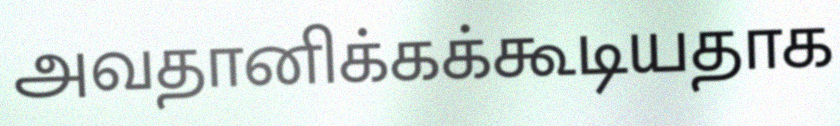
அவதானிக்கக்கூடியதாக